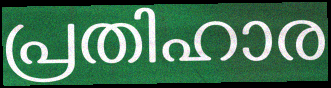
പ്രതിഹാര